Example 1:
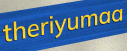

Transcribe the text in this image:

theriyumaa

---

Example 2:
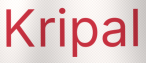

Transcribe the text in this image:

Kripal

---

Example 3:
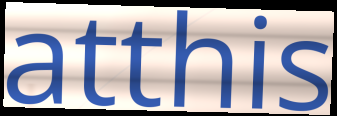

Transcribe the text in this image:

atthis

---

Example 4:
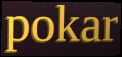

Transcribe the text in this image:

pokar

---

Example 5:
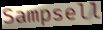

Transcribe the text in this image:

Sampsell